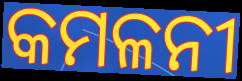
କମଳନୀ